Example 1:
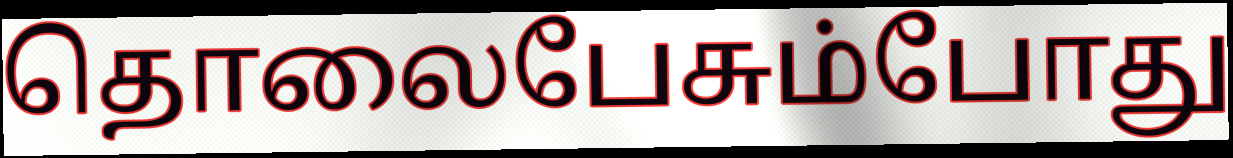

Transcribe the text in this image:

தொலைபேசும்போது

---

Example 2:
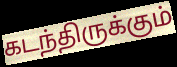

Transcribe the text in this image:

கடந்திருக்கும்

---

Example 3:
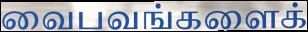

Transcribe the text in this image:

வைபவங்களைக்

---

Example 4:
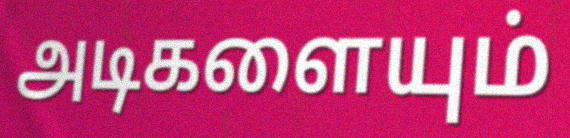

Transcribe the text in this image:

அடிகளையும்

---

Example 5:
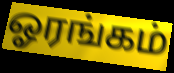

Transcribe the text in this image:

ஓரங்கம்